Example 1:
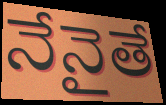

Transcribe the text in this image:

నేనైతే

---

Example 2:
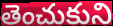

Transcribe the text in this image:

తెంచుకుని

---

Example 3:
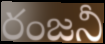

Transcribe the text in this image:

రంజనీ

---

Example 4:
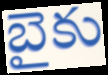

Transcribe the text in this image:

బైకు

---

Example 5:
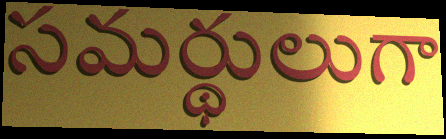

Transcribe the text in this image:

సమర్థులుగా